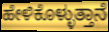
ಹೇಳಿಕೊಳ್ಳುತ್ತಾನೆ